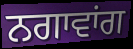
ਨਗਾਵਾਂਗ